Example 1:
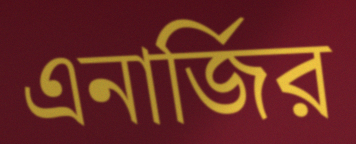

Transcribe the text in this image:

এনার্জির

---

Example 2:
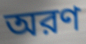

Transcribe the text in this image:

অরণ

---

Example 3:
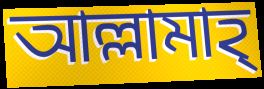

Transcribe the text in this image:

আল্লামাহ্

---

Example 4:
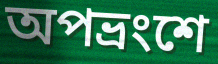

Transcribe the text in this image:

অপভ্রংশে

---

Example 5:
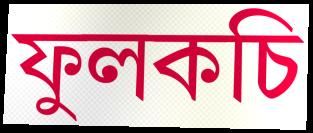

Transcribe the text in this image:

ফুলকচি